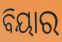
ବିୟାର